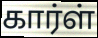
கார்ள்